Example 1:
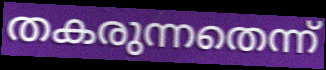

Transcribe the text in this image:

തകരുന്നതെന്ന്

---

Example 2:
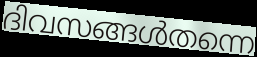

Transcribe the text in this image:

ദിവസങ്ങൾതന്നെ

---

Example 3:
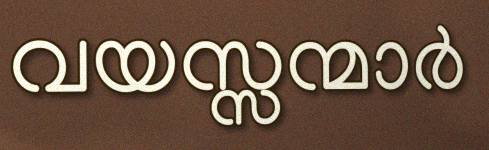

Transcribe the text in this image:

വയസ്സന്മാർ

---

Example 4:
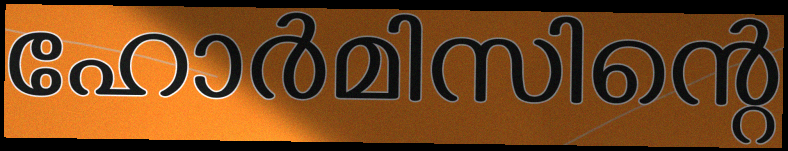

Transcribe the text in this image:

ഹോർമിസിന്റെ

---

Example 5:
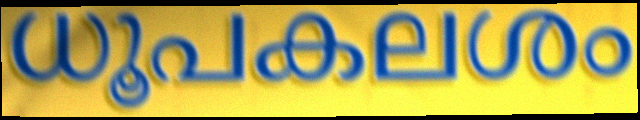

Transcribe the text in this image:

ധൂപകലശം